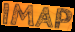
IMAP